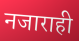
नजाराही